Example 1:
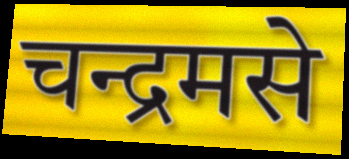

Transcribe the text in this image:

चन्द्रमसे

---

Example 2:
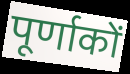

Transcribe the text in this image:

पूर्णाकों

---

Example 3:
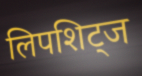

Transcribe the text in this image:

लिपशिट्ज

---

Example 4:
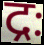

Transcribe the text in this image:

द्रः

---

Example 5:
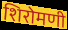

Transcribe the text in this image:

शिरोमणी